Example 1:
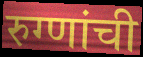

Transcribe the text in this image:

रुग्णांची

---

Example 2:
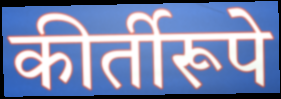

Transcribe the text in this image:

कीर्तीरूपे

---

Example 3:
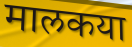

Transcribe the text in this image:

मालकया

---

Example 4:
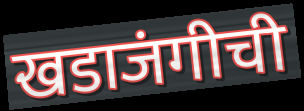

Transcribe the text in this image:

खडाजंगीची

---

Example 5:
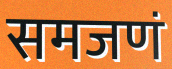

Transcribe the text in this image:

समजणं